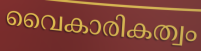
വൈകാരികത്വം